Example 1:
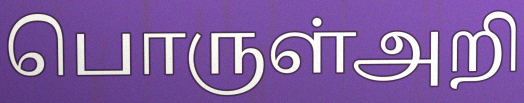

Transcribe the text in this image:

பொருள்அறி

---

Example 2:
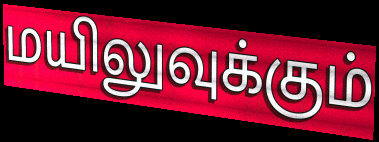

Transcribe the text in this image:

மயிலுவுக்கும்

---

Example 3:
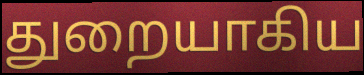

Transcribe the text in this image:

துறையாகிய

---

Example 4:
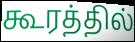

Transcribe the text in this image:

கூரத்தில்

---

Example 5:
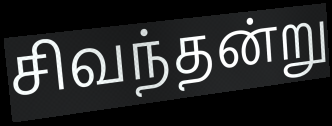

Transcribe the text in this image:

சிவந்தன்று